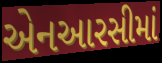
એનઆરસીમાં